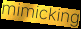
mimicking